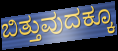
ಬಿತ್ತುವುದಕ್ಕೂ